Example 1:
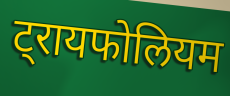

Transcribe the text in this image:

ट्रायफोलियम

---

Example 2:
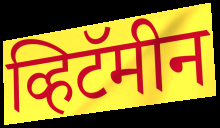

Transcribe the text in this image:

व्हिटॅमीन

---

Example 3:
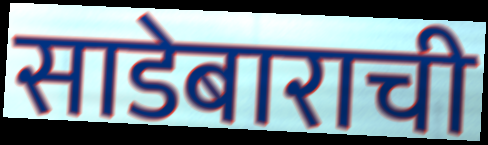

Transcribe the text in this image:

साडेबाराची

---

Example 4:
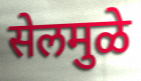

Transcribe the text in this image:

सेलमुळे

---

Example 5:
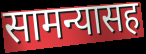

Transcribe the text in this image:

सामन्यासह